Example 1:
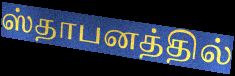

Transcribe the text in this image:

ஸ்தாபனத்தில்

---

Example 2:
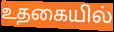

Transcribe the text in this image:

உதகையில்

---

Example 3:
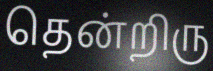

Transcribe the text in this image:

தென்றிரு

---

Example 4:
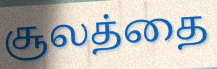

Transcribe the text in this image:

சூலத்தை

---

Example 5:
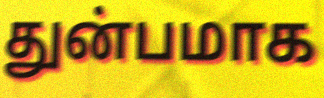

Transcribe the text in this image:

துன்பமாக